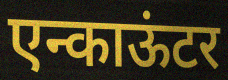
एन्काऊंटर